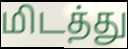
மிடத்து